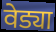
वेड्या